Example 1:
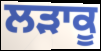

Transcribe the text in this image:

ਲੜਾਕੂ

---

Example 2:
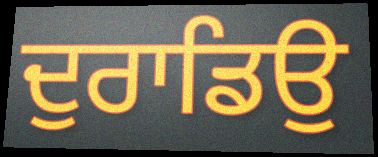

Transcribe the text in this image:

ਦੁਰਾਡਿਉ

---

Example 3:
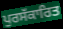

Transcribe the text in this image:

ਪੁਰਸੱਕਾਰਿਤ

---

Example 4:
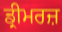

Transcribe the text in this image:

ਡ੍ਰੀਮਰਜ਼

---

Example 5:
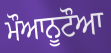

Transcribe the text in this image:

ਮੌਆਨੂਟੌਆ